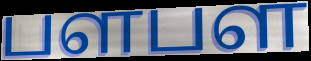
பளபள